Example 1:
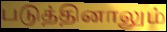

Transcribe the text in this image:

படுத்தினாலும்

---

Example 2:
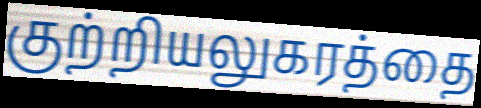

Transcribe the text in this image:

குற்றியலுகரத்தை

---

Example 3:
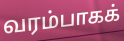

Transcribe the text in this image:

வரம்பாகக்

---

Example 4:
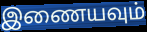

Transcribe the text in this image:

இணையவும்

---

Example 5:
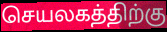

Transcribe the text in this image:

செயலகத்திற்கு